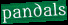
pandals